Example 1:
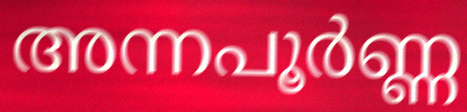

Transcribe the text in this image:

അന്നപൂർണ്ണ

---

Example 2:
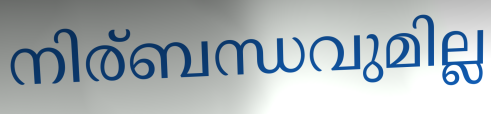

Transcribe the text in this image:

നിര്ബന്ധവുമില്ല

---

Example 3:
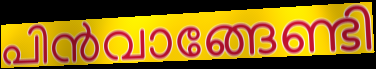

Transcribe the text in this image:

പിൻവാങ്ങേണ്ടി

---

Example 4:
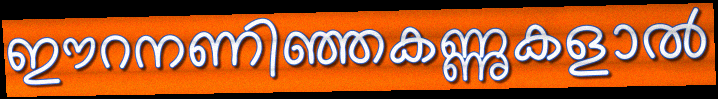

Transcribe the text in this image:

ഈറനണിഞ്ഞകണ്ണുകളാൽ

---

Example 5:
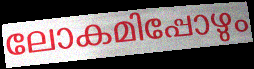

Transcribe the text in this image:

ലോകമിപ്പോഴും